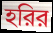
হরির